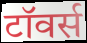
टॉवर्स